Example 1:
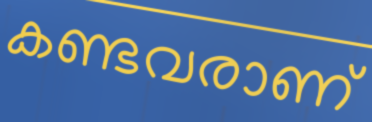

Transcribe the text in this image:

കണ്ടവരാണ്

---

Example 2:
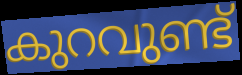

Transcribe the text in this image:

കുറവുണ്ട്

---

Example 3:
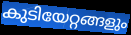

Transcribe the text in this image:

കുടിയേറ്റങ്ങളും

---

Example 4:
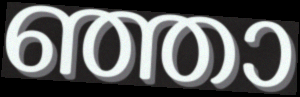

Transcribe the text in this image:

ഞ്ഞാ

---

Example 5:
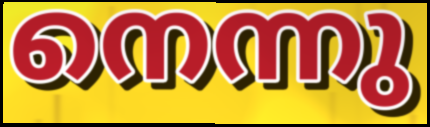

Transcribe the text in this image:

നെന്നു